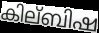
കില്ബിഷ